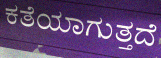
ಕತೆಯಾಗುತ್ತದೆ